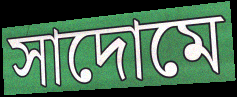
সাদোমে